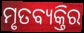
ମୃତବ୍ୟକ୍ତିର